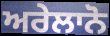
ਅਰੇਲਾਨੋ